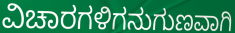
ವಿಚಾರಗಳಿಗನುಗುಣವಾಗಿ